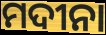
ମଦୀନା